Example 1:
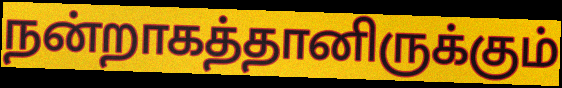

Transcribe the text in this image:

நன்றாகத்தானிருக்கும்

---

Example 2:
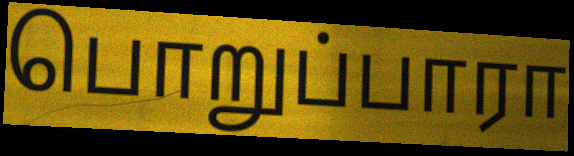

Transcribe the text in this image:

பொறுப்பாரா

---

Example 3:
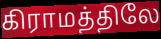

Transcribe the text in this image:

கிராமத்திலே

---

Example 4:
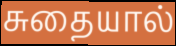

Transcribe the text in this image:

சுதையால்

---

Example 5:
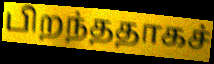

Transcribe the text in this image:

பிறந்ததாகச்